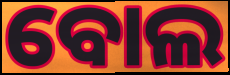
ବୋଲ